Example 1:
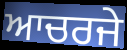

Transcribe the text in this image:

ਆਚਰਜੇ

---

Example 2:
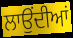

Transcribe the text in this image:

ਲਾਉਂਦੀਆਂ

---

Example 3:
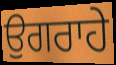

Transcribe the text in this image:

ਉਗਰਾਹੇ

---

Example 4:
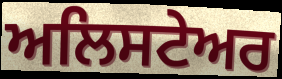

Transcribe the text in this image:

ਅਲਿਸਟੇਅਰ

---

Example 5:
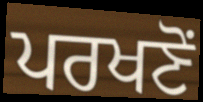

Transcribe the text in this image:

ਪਰਖਣੋਂ